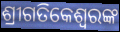
ଶ୍ରୀଗତିକେଶ୍ବରଙ୍କ